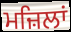
ਮਜ਼ਿਲਾਂ